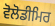
ਵੋਲੋਡੀਮਿਰ